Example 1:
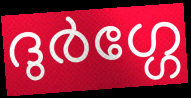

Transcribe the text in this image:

ദുർഗ്ഗേ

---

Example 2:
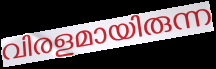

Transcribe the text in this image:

വിരളമായിരുന്ന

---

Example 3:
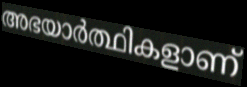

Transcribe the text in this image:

അഭയാർത്ഥികളാണ്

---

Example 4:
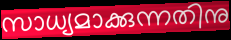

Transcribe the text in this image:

സാധ്യമാക്കുന്നതിനു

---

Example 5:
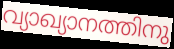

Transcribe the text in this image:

വ്യാഖ്യാനത്തിനു